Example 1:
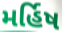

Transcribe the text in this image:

મર્હિષ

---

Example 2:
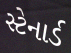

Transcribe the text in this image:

સ્ટેનાર્ડ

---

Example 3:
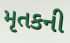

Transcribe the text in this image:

મૃતકની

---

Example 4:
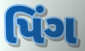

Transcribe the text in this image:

પિંગ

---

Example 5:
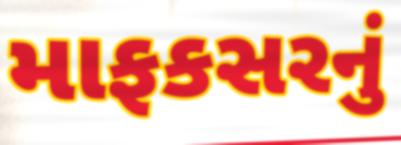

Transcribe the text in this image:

માફકસરનું